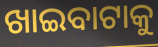
ଖାଇବାଟାକୁ